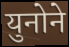
युनोने